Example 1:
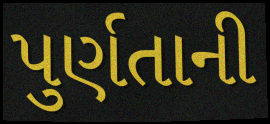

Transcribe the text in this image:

પુર્ણતાની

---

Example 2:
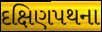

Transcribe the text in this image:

દક્ષિણપથના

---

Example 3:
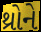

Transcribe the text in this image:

થ્રોને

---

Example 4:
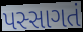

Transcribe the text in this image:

પસ્સાગતં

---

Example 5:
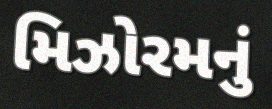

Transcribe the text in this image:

મિઝોરમનું